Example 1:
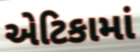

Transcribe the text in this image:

એટિકામાં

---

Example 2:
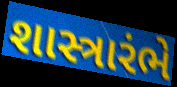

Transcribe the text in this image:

શાસ્ત્રારંભે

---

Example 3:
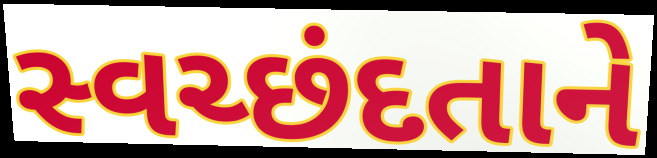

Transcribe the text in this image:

સ્વચ્છંદતાને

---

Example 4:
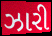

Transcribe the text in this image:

ઝારી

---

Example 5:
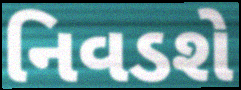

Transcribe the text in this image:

નિવડશે